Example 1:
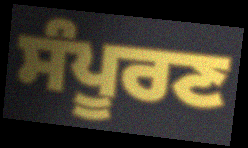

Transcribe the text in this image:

ਸੰਪੂਰਣ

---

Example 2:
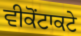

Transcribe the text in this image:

ਵੀਕੋਂਟਾਕਟੇ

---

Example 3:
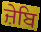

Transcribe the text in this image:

ਜ਼ੇਬਿ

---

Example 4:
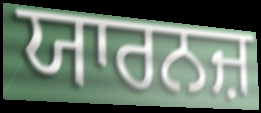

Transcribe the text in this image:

ਯਾਰਨਜ਼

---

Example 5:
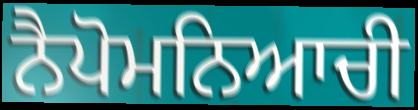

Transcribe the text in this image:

ਨੈਪੋਮਨਿਆਚੀ